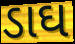
ડાઘ